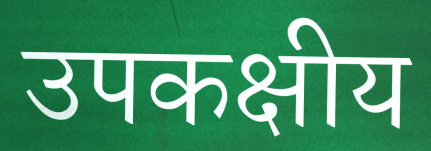
उपकक्षीय